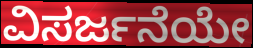
ವಿಸರ್ಜನೆಯೇ